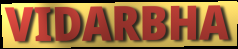
VIDARBHA